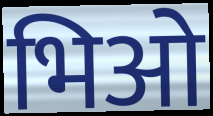
भिओ